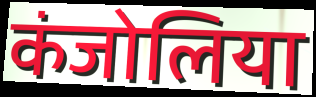
कंजोलिया